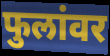
फुलांवर